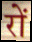
रों